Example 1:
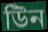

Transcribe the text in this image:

উিন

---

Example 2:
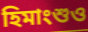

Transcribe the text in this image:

হিমাংশুও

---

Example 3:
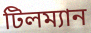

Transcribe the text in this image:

টিলম্যান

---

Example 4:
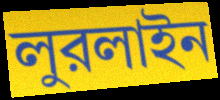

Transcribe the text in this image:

লুরলাইন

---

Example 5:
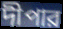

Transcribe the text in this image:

দীপার